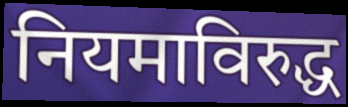
नियमाविरुद्ध